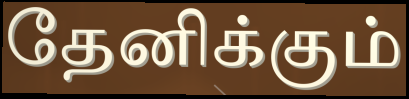
தேனிக்கும்